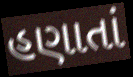
હણાતાં